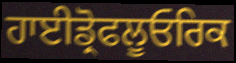
ਹਾਈਡ੍ਰੋਫਲੂਓਰਿਕ